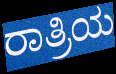
ರಾತ್ರಿಯ